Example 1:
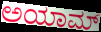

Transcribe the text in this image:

ಅಯಾಮ್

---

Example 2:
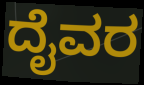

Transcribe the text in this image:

ದೈವರ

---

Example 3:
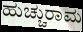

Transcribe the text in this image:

ಹುಚ್ಚುರಾಮ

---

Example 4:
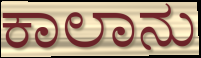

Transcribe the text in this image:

ಕಾಲಾನು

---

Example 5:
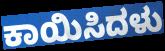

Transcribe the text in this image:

ಕಾಯಿಸಿದಳು